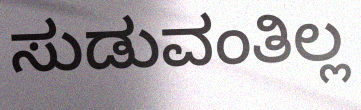
ಸುಡುವಂತಿಲ್ಲ